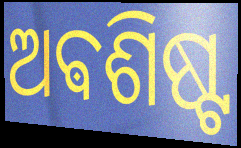
ଅଵଶିଷ୍ଟ